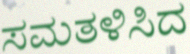
ಸಮತಳಿಸಿದ